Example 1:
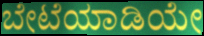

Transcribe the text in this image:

ಬೇಟೆಯಾಡಿಯೇ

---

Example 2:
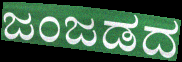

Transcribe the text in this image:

ಜಂಜಡದ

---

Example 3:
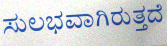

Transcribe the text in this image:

ಸುಲಭವಾಗಿರುತ್ತದೆ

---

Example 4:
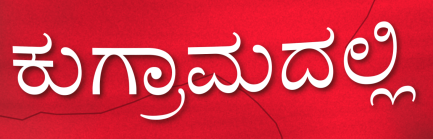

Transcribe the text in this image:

ಕುಗ್ರಾಮದಲ್ಲಿ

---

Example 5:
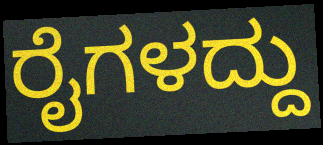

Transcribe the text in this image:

ರೈಗಳದ್ದು